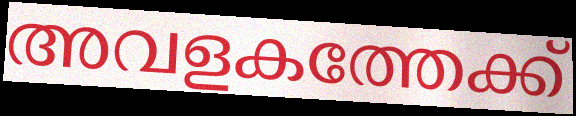
അവളകത്തേക്ക്